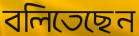
বলিতেছেন